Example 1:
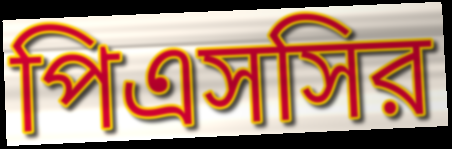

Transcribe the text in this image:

পিএসসির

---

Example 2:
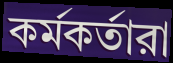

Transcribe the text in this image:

কর্মকর্তারা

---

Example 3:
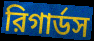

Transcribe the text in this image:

রিগার্ডস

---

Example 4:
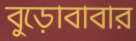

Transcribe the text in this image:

বুড়োবাবার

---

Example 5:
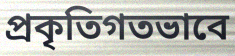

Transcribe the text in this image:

প্রকৃতিগতভাবে